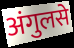
अंगुलसे